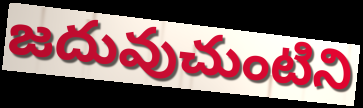
జదువుచుంటిని